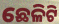
ଛେଳିଟି